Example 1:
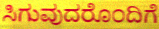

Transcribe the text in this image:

ಸಿಗುವುದರೊಂದಿಗೆ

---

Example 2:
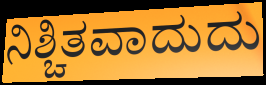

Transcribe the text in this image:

ನಿಶ್ಚಿತವಾದುದು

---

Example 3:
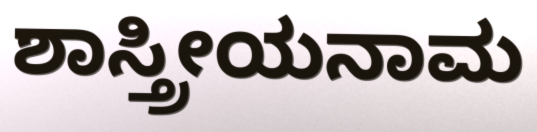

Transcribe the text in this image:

ಶಾಸ್ತ್ರೀಯನಾಮ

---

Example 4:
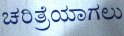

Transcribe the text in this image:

ಚರಿತ್ರೆಯಾಗಲು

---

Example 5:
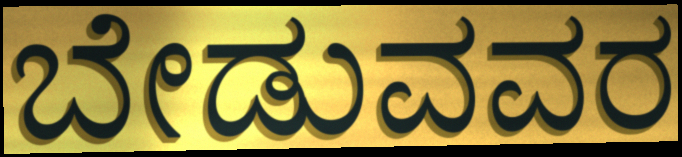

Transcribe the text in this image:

ಬೇಡುವವರ